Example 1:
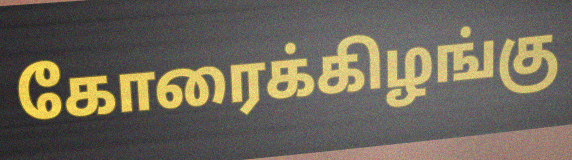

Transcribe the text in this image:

கோரைக்கிழங்கு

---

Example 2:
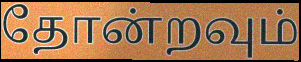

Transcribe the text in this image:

தோன்றவும்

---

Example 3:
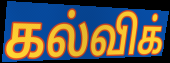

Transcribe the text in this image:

கல்விக்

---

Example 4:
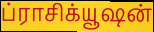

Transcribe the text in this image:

ப்ராசிக்யூஷன்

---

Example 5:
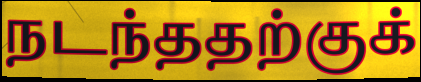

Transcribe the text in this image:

நடந்ததற்குக்